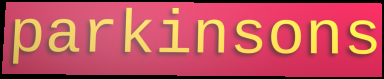
parkinsons